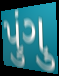
પુંગુ